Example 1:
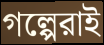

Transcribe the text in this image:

গল্পেরাই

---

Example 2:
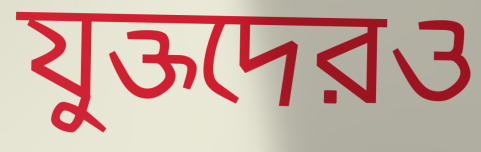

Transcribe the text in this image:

যুক্তদেরও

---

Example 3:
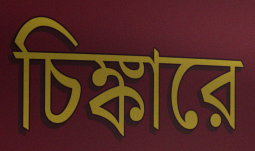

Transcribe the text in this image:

চিঙ্কারে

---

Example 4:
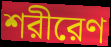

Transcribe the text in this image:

শরীরেণ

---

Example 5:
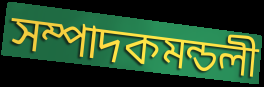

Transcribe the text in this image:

সম্পাদকমন্ডলী